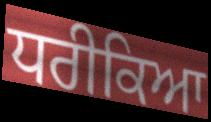
ਧਰੀਕਿਆ